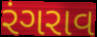
રંગરાવ